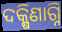
ଦକ୍ଷିଣାଗ୍ନି